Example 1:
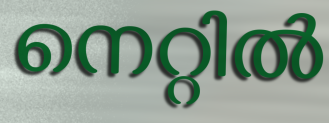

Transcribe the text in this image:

നെറ്റിൽ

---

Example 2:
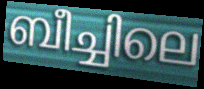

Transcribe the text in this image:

ബീച്ചിലെ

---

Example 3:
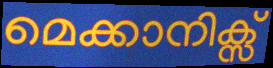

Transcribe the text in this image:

മെക്കാനിക്സ്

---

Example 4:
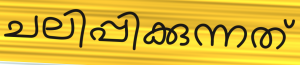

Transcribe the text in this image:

ചലിപ്പിക്കുന്നത്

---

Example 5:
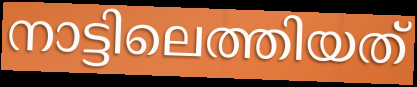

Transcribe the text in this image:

നാട്ടിലെത്തിയത്